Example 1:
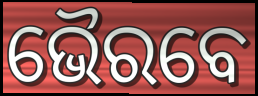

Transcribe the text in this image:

ଭୈରବେ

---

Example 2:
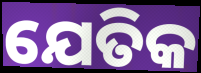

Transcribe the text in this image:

ଯେତିକ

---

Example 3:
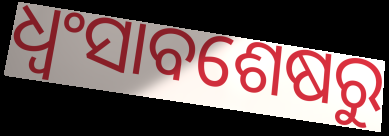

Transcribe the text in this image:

ଧ୍ୱଂସାବଶେଷରୁ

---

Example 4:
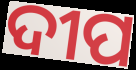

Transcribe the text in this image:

ଦୀପ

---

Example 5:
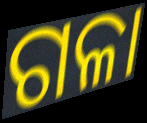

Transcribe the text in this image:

ଗଳା